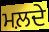
ਮਲ਼ਦੇ